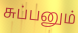
சுப்பனும்